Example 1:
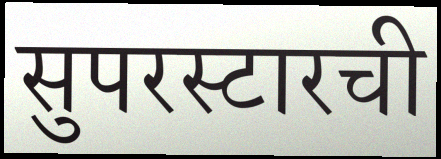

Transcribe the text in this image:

सुपरस्टारची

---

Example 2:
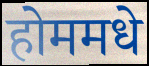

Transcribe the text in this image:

होममधे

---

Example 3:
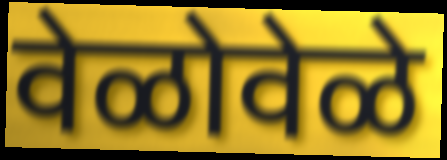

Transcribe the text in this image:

वेळोवेळे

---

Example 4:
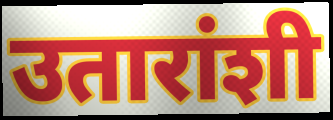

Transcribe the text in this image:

उतारांशी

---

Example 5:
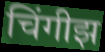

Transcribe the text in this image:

चिंगीझ